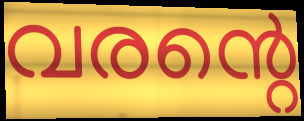
വരന്റെ